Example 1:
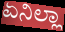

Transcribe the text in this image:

ಏನಿಲ್ಲಾ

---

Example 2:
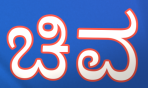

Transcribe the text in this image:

ಚಿವ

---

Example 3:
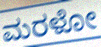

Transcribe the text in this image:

ಮರಳೋ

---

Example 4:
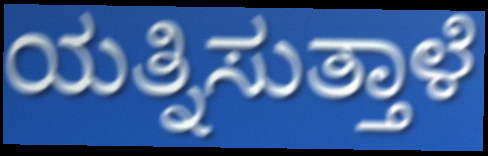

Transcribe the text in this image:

ಯತ್ನಿಸುತ್ತಾಳೆ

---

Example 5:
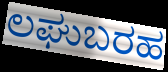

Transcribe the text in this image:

ಲಘುಬರಹ